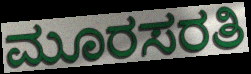
ಮೂರಸರತಿ